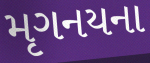
મૃગનયના